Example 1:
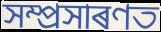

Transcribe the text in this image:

সম্প্ৰসাৰণত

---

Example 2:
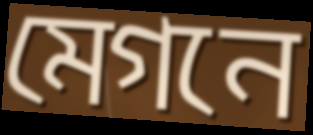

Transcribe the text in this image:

মেগনে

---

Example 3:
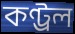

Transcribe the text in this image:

কণ্ট্ৰল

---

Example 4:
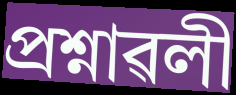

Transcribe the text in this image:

প্ৰশ্নাৱলী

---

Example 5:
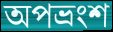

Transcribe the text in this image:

অপভ্ৰংশ